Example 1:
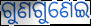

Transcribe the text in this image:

ଗୁଣଗୁଣେଇ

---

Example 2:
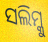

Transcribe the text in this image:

ସଲିମ୍କୁ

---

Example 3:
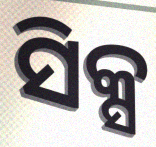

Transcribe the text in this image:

ସିକ୍ସ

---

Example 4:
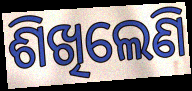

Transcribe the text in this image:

ଶିଖିଲେଣି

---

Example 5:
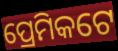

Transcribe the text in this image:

ପ୍ରେମିକଟେ